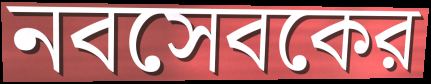
নবসেবকের